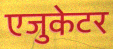
एजुकेटर